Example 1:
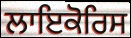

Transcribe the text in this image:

ਲਾਇਕੋਰਿਸ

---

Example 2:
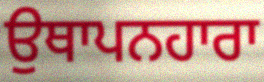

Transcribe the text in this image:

ਉਥਾਪਨਹਾਰਾ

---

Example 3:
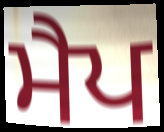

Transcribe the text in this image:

ਮੈਪ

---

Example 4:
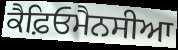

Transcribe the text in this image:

ਕੈਫ਼ਿਓਮੈਨਸੀਆ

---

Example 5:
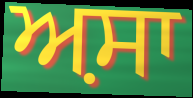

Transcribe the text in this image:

ਅ਼ਸਾ